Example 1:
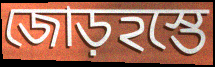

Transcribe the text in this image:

জোড়হস্তে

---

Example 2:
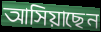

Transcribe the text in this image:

আসিয়াছেন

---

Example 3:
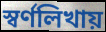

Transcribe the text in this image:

স্বর্ণলিখায়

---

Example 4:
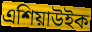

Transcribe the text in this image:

এশিয়াউইক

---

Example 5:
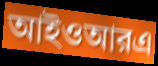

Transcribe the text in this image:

আইওআরএ